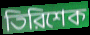
তিরিশেক